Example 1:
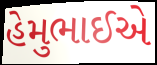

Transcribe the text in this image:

હેમુભાઈએ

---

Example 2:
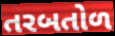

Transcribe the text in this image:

તરબતોળ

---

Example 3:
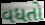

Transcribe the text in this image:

વધતો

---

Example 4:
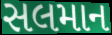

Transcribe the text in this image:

સલમાન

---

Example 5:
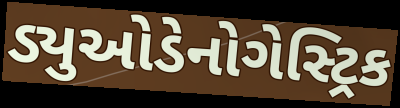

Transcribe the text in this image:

ડ્યુઓડેનોગેસ્ટ્રિક